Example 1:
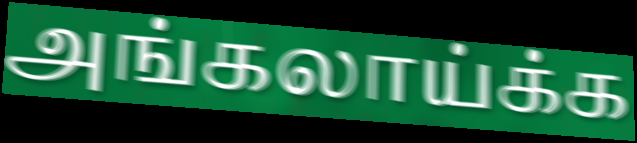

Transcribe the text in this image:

அங்கலாய்க்க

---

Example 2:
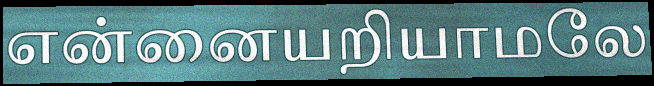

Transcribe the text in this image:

என்னையறியாமலே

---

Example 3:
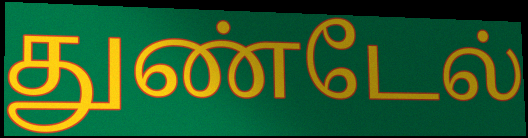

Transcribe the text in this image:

துண்டேல்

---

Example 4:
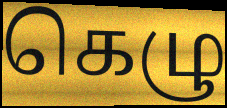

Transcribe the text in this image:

கெழு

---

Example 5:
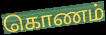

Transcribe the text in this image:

கொணம்